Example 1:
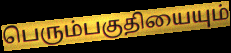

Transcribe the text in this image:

பெரும்பகுதியையும்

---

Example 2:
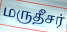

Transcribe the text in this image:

மருதீசர்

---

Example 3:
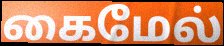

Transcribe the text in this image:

கைமேல்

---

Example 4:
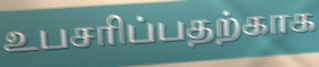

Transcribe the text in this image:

உபசரிப்பதற்காக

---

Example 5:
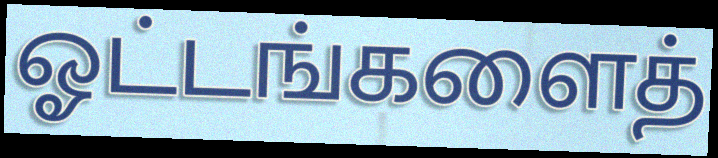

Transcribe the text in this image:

ஓட்டங்களைத்